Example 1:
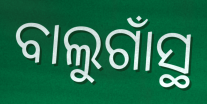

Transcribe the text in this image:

ବାଲୁଗାଁସ୍ଥ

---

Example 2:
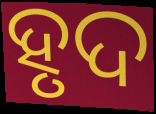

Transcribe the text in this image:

ହୃଦ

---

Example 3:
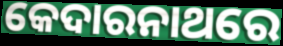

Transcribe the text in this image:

କେଦାରନାଥରେ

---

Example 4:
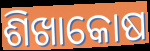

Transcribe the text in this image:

ଶିଖାକୋଷ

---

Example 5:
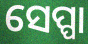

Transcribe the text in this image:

ସେପ୍ପା